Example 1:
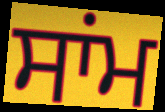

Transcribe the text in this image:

ਸਾਂਮ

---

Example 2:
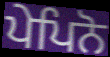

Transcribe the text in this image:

ਪੇਪਿਨੋ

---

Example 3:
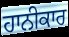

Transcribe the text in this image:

ਹਾਨੀਕਾਰ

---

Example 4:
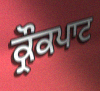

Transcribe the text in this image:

ਕ੍ਰੌਕਪਾਟ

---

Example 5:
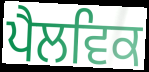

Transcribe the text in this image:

ਪੈਲਵਿਕ